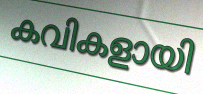
കവികളായി